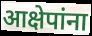
आक्षेपांना